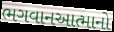
ભગવાનઆત્માનો